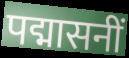
पद्मासनीं